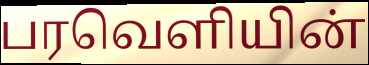
பரவெளியின்